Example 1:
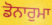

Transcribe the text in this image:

ਡੋਨਾਰੁਮਾ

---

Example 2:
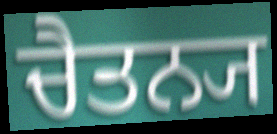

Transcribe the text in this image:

ਚੈਤਨ੍ਯ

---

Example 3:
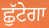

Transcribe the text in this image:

ਛੁੱਟੇਗਾ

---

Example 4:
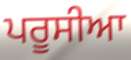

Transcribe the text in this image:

ਪਰੂਸੀਆ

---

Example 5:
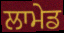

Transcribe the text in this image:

ਲਾਮੇਡ